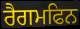
ਰੈਗਮਫਿਨ